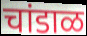
चांडाळ